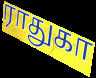
ராதுகா